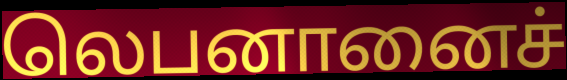
லெபனானைச்